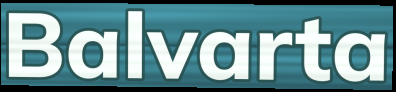
Balvarta